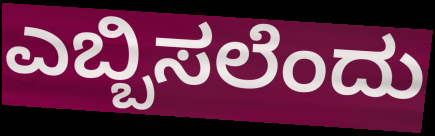
ಎಬ್ಬಿಸಲೆಂದು